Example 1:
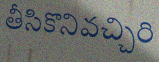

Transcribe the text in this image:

తీసికొనివచ్చిరి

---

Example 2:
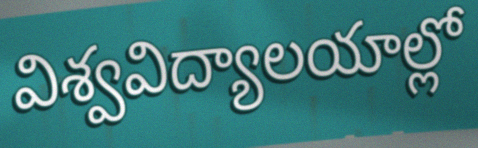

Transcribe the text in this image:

విశ్వవిద్యాలయాల్లో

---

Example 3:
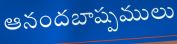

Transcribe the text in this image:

ఆనందబాష్పములు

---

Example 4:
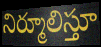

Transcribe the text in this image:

నిర్మూలిస్తూ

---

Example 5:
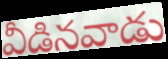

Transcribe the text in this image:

వీడినవాడు